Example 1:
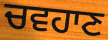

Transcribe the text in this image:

ਚਵਹਾਣ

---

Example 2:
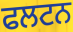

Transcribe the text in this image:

ਫਲਟਨ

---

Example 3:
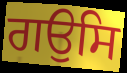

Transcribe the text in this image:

ਗਉਸਿ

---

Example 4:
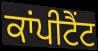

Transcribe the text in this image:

ਕਾਂਪੀਟੈਂਟ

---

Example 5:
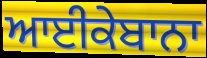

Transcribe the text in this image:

ਆਈਕੇਬਾਨਾ